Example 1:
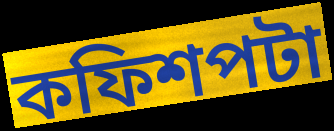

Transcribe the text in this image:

কফিশপটা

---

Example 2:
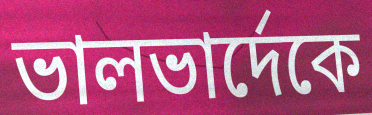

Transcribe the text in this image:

ভালভার্দেকে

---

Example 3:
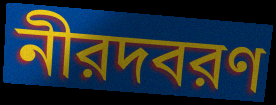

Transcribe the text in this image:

নীরদবরণ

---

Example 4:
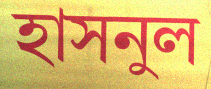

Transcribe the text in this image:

হাসনুল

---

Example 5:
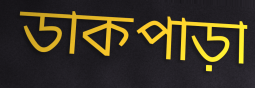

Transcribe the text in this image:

ডাকপাড়া